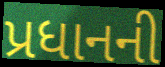
પ્રધાનની